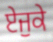
ਏਜੁਕੇ